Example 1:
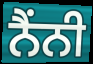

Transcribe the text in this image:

ਨੈਂਨੀ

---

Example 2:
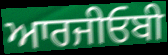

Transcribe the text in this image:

ਆਰਜੀਓਬੀ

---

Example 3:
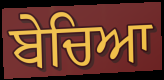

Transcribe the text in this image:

ਬੇਚਿਆ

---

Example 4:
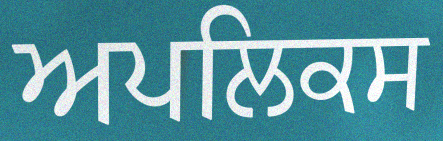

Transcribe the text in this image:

ਅਪਲਿਕਸ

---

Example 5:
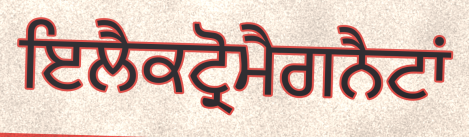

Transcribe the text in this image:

ਇਲੈਕਟ੍ਰੋਮੈਗਨੈਟਾਂ